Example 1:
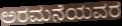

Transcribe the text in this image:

ಅರಮನೆಯವರ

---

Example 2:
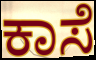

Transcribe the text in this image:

ಕಾಸೆ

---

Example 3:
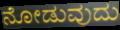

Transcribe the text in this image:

ನೋಡುವುದು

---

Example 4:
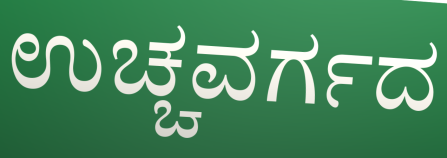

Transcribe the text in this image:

ಉಚ್ಚವರ್ಗದ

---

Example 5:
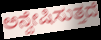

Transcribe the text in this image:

ಅನ್ವೇಷಿಸುತ್ತದೆ